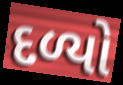
દળ્યો